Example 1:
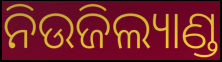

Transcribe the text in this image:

ନିଉଜିଲ୍ୟାଣ୍ଡ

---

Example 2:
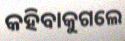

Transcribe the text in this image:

କହିବାକୁଗଲେ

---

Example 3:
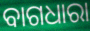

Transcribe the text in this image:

ବାଗଧାରା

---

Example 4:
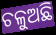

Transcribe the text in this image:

ଚଳୁଅଛି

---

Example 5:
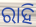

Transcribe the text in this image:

ରାହି